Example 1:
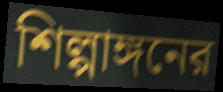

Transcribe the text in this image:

শিল্পাঙ্গনের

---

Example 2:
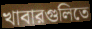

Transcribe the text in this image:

খাবারগুলিতে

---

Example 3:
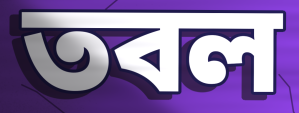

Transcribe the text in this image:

তবল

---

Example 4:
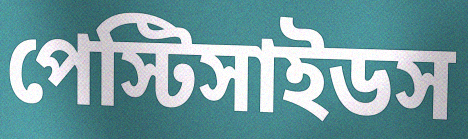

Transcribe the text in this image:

পেস্টিসাইডস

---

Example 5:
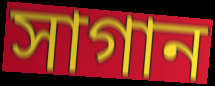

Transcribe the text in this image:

সাগান